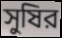
সুষির